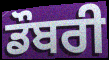
ਡੌਬਰੀ